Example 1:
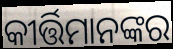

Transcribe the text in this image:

କୀର୍ତ୍ତିମାନଙ୍କର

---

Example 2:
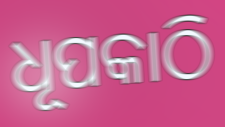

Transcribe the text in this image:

ଧୂପକାଠି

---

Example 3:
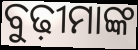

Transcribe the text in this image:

ବୁଢ଼ୀମାଙ୍କ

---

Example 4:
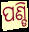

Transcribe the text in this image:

ପଣ୍ଡି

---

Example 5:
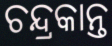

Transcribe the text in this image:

ଚନ୍ଦ୍ରକାନ୍ତ